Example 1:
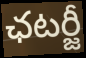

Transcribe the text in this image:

ఛటర్జీ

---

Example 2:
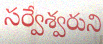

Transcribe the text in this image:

సర్వేశ్వరుని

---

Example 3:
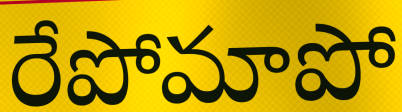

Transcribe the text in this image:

రేపోమాపో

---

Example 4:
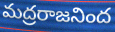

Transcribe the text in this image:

మద్రరాజనింద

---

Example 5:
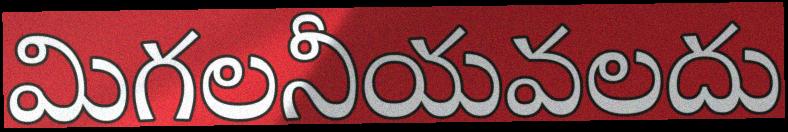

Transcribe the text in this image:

మిగలనీయవలదు